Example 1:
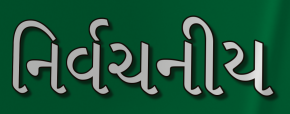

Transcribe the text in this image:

નિર્વચનીય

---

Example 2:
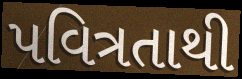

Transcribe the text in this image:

પવિત્રતાથી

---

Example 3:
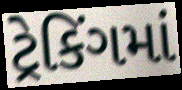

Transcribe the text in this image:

ટ્રેકિંગમાં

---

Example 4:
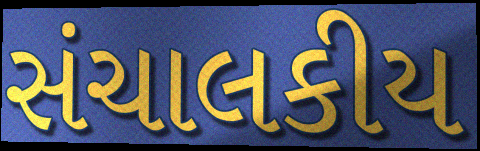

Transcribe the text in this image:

સંચાલકીય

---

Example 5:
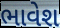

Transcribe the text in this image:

ભાવેશ